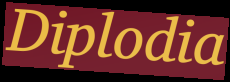
Diplodia